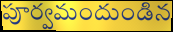
పూర్వమందుండిన